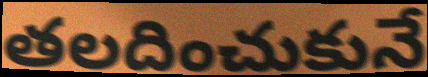
తలదించుకునే